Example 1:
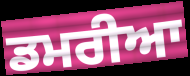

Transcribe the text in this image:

ਡਮਰੀਆ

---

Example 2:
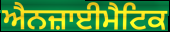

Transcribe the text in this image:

ਐਨਜ਼ਾਈਮੈਟਿਕ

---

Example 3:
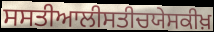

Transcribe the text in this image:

ਸਸਤੀਆਲੀਸਤੀਚਯੇਸਕੀਖ਼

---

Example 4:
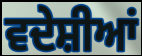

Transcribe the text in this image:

ਵਦੇਸ਼ੀਆਂ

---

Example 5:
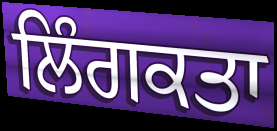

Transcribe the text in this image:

ਲਿੰਗਕਤਾ